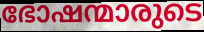
ഭോഷന്മാരുടെ